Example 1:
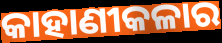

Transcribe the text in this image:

କାହାଣୀକଳାର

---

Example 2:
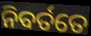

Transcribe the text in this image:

ନିବର୍ତତେ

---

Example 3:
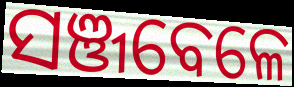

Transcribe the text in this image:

ସଞ୍ଜବେଳେ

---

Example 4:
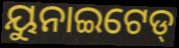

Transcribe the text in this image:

ୟୁନାଇଟେଡ୍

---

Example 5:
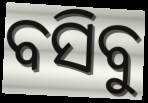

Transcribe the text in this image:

ବସିବୁ